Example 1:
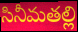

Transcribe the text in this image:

సినీమతల్లి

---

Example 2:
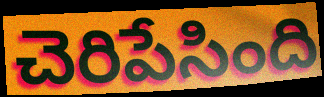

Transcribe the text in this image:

చెరిపేసింది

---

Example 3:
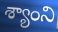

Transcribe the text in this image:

శ్యాంని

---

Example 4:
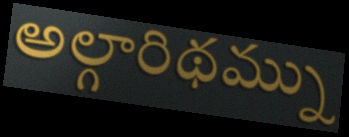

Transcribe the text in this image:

అల్గారిథమ్ను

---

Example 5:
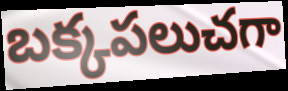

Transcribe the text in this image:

బక్కపలుచగా